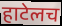
हाटेलच